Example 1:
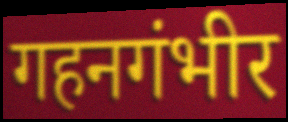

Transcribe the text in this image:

गहनगंभीर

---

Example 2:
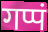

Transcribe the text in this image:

गप्पं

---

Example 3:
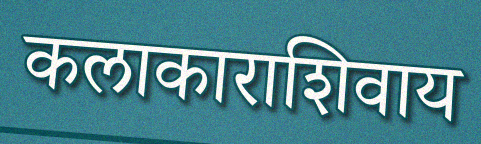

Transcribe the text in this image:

कलाकाराशिवाय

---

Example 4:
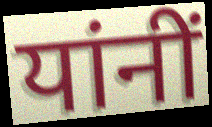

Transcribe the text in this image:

यांनीं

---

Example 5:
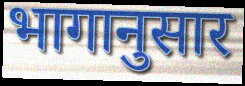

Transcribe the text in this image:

भागानुसार